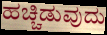
ಹಚ್ಚಿಡುವುದು